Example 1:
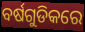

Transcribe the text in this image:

ବର୍ଷଗୁଡିକରେ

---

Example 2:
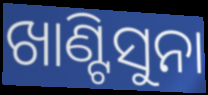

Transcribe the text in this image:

ଖାଣ୍ଟିସୁନା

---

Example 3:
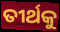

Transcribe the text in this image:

ତୀର୍ଥକୁ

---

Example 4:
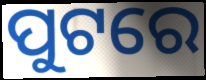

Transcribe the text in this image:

ପୁଟରେ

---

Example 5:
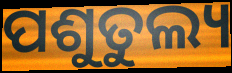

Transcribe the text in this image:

ପଶୁତୁଲ୍ୟ